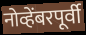
नोव्हेंबरपूर्वी